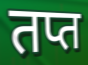
तप्त